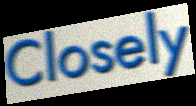
Closely